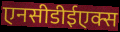
एनसीडीईएक्स